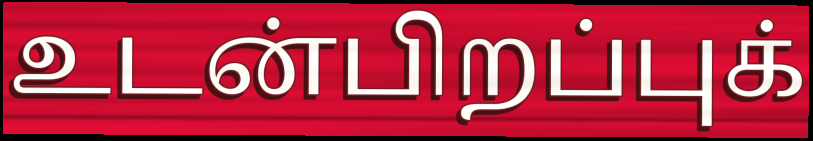
உடன்பிறப்புக்